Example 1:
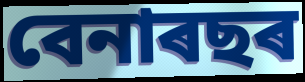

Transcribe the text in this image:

বেনাৰছৰ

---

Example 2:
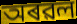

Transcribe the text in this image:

অৰৱল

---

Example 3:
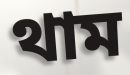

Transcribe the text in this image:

থাম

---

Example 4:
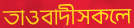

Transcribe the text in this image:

তাওবাদীসকলে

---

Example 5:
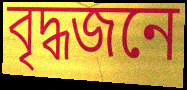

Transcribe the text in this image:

বৃদ্ধজনে